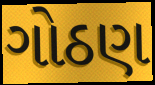
ગોઠણ